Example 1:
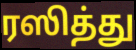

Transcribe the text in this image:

ரஸித்து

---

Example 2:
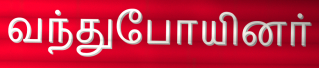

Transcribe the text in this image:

வந்துபோயினர்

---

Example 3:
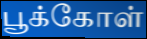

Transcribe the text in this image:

பூக்கோள்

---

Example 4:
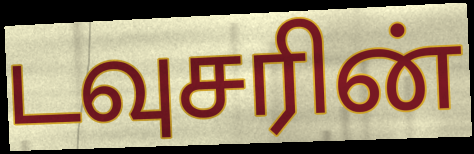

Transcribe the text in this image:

டவுசரின்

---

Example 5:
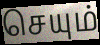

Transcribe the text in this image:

செயும்